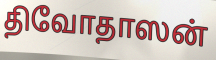
திவோதாஸன்